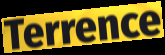
Terrence